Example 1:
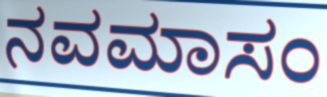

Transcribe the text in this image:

ನವಮಾಸಂ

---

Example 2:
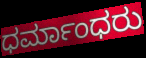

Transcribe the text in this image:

ಧರ್ಮಾಂಧರು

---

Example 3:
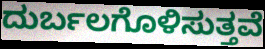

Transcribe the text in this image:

ದುರ್ಬಲಗೊಳಿಸುತ್ತವೆ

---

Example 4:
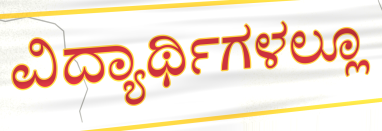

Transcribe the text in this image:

ವಿದ್ಯಾರ್ಥಿಗಳಲ್ಲೂ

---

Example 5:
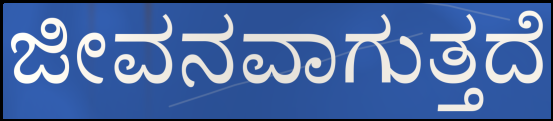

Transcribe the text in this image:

ಜೀವನವಾಗುತ್ತದೆ